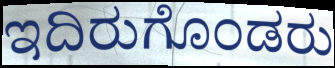
ಇದಿರುಗೊಂಡರು